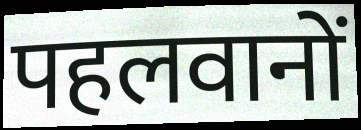
पहलवानों